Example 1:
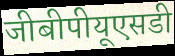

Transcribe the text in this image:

जीबीपीयूएसडी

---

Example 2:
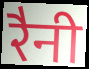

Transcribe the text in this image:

रैनी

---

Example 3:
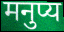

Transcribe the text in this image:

मनुप्य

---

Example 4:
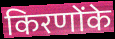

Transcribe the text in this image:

किरणोंके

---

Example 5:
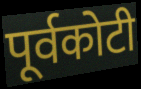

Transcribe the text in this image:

पूर्वकोटी